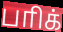
பரிக்